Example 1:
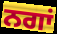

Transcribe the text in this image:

ਨਗਾਂ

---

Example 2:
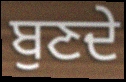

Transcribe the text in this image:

ਬੁਣਦੇ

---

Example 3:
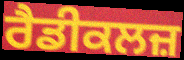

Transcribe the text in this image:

ਰੈਡੀਕਲਜ਼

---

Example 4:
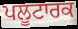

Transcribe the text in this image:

ਪਲੂਟਾਰਕ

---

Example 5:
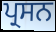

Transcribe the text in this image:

ਪ੍ਰਸਨ